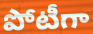
పోటీగా